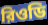
রিওডি